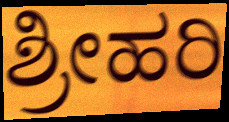
ಶ್ರೀಹರಿ